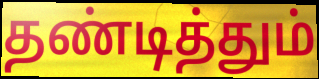
தண்டித்தும்